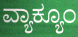
ವ್ಯಾಕ್ಯೂಂ